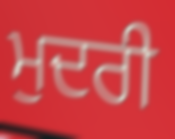
ਮੁਦਰੀ